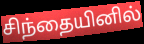
சிந்தையினில்